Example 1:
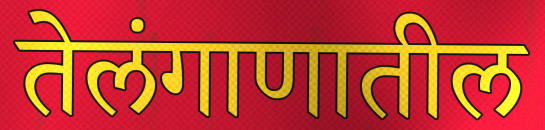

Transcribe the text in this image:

तेलंगाणातील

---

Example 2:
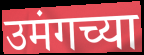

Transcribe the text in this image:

उमंगच्या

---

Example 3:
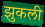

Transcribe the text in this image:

झुकली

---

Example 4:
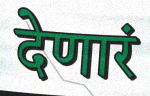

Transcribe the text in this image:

देणारं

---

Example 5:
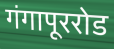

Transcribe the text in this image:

गंगापूररोड